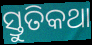
ସ୍ତୁତିକଥା